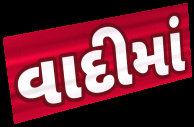
વાદીમાં